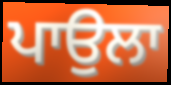
ਪਾਉਲਾ